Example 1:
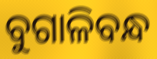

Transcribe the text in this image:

ବୁଗାଳିବନ୍ଧ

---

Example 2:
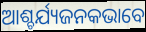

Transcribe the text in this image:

ଆଶ୍ଚର୍ଯ୍ୟଜନକଭାବେ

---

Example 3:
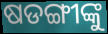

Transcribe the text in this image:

ଷଡଙ୍ଗୀଙ୍କୁ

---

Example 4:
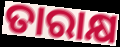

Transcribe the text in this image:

ତାରାକ୍ଷ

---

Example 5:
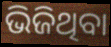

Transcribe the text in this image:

ଭିଜିଥିବା